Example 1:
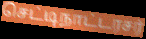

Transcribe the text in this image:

செட்டிநாட்டரசர்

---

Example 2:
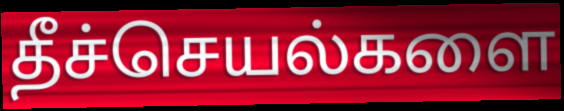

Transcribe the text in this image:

தீச்செயல்களை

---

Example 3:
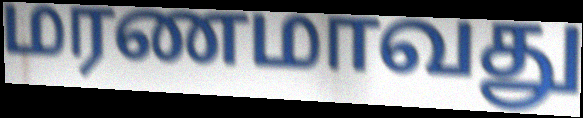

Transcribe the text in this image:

மரணமாவது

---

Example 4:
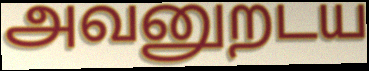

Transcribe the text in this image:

அவனுறடய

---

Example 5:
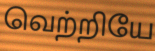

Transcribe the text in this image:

வெற்றியே